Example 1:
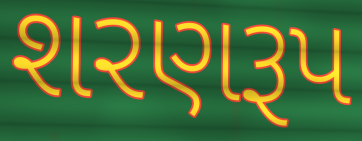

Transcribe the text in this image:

શરણરૂપ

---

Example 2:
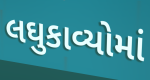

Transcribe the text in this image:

લઘુકાવ્યોમાં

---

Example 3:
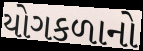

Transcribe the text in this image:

યોગકળાનો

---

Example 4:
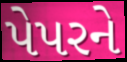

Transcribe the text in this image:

પેપરને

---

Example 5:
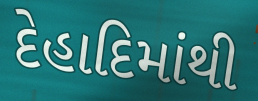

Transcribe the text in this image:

દેહાદિમાંથી